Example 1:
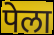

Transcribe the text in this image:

पेला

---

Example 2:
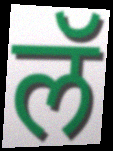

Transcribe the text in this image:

लॅ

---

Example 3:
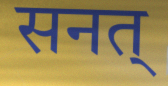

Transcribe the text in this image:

सनत्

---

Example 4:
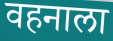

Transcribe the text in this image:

वहनाला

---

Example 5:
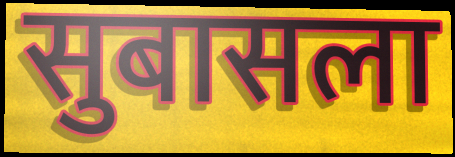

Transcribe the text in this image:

सुबासला